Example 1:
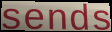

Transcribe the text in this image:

sends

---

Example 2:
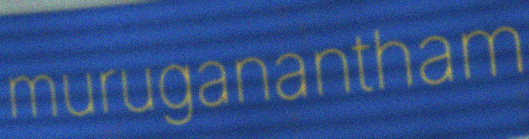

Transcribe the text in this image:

muruganantham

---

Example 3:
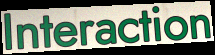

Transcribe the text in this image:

Interaction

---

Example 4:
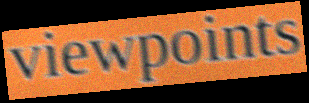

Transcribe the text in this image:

viewpoints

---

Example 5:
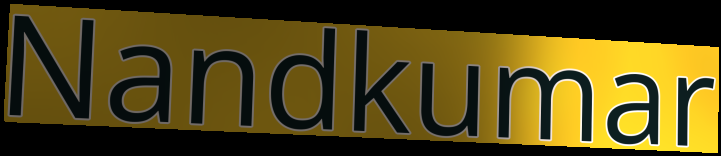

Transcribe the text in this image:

Nandkumar